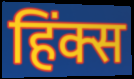
हिंक्स